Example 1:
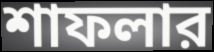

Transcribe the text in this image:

শাফলার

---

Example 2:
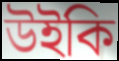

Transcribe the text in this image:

উইকি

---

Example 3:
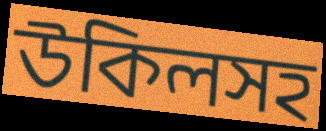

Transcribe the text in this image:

উকিলসহ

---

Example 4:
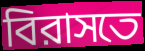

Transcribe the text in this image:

বিরাসতে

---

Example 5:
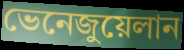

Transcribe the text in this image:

ভেনেজুয়েলান